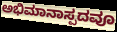
ಅಭಿಮಾನಾಸ್ಪದವೂ